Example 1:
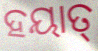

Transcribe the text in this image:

ହୟାତ୍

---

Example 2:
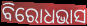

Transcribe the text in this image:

ବିରୋଧଭାସ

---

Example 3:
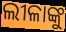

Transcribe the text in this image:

ଲୀଳାଙ୍କୁ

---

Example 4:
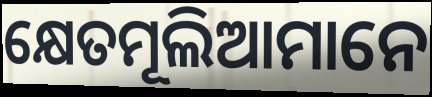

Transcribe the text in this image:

କ୍ଷେତମୂଲିଆମାନେ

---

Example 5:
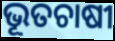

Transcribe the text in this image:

ଭୂତଚାଷୀ